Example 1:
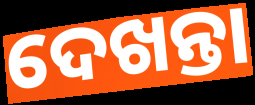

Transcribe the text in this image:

ଦେଖନ୍ତା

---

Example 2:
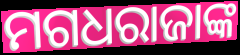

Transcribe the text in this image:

ମଗଧରାଜାଙ୍କ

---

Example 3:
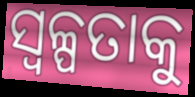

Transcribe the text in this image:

ସ୍ଵଳ୍ପତାକୁ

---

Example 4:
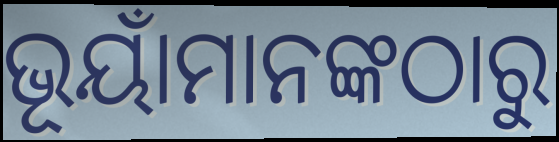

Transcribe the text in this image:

ଭୂୟାଁମାନଙ୍କଠାରୁ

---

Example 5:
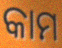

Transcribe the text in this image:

କାମ